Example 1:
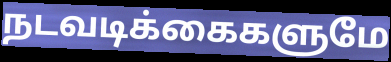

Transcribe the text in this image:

நடவடிக்கைகளுமே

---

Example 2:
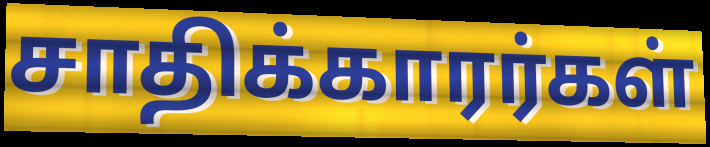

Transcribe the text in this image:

சாதிக்காரர்கள்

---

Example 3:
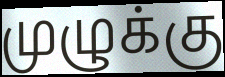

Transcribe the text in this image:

முழுக்கு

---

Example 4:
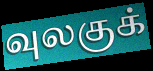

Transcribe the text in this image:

வுலகுக்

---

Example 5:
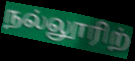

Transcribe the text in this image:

நல்லூரிற்